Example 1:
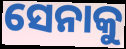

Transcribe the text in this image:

ସେନାକୁ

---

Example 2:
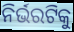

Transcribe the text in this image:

ନିର୍ଭରଟିକୁ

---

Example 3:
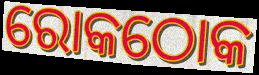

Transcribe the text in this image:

ରୋକଠୋକ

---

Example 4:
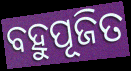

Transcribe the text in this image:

ବହୁପୂଜିତ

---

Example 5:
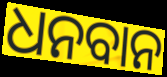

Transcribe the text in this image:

ଧନବାନ